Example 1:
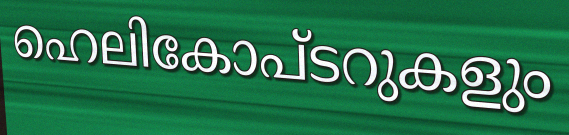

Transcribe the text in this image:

ഹെലികോപ്ടറുകളും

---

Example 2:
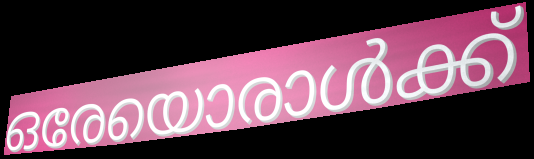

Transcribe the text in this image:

ഒരേയൊരാൾക്ക്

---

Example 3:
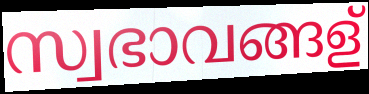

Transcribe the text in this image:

സ്വഭാവങ്ങള്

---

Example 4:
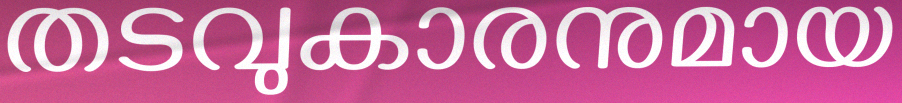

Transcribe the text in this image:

തടവുകാരനുമായ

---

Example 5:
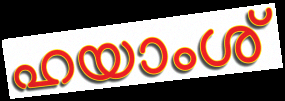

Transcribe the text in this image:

ഹയാംശ്